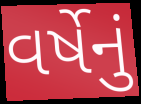
વર્ષેનું